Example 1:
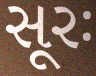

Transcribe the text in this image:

સૂરઃ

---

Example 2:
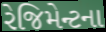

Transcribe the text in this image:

રેજિમેન્ટના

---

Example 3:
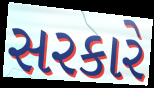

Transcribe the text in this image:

સરકારે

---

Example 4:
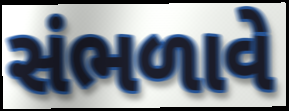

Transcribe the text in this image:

સંભળાવે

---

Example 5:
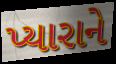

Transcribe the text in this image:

પ્યારાને